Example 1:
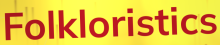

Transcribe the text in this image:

Folkloristics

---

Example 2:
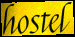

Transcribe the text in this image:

hostel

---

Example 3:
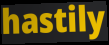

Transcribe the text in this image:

hastily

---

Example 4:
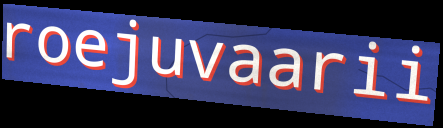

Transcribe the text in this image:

roejuvaarii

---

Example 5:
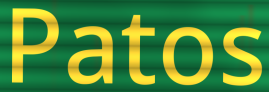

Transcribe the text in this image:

Patos